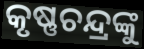
କୃଷ୍ଣଚନ୍ଦ୍ରଙ୍କୁ